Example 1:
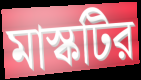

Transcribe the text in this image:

মাস্কটির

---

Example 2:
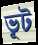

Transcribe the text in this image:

ভূট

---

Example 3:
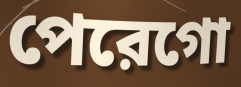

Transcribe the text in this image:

পেরেগো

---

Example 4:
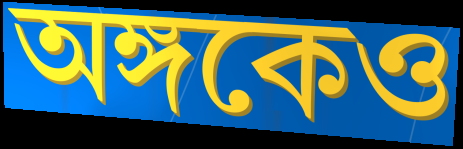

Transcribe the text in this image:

অঙ্গকেও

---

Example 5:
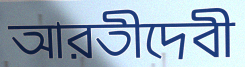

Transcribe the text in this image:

আরতীদেবী